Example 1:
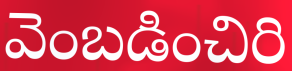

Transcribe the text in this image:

వెంబడించిరి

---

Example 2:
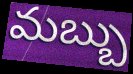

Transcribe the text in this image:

మబ్బు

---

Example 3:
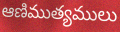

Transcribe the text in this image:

ఆణిముత్యములు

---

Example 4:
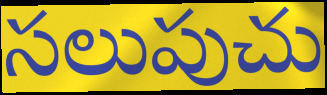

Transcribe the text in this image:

సలుపుచు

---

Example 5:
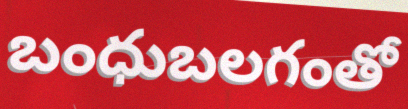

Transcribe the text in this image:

బంధుబలగంతో